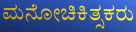
ಮನೋಚಿಕಿತ್ಸಕರು